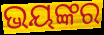
ଭୟଙ୍କର